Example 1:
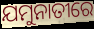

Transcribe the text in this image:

ଯମୁନାତୀରେ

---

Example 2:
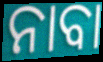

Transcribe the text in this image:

ନାବା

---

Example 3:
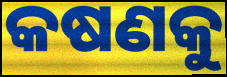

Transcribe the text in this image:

କଷଣକୁ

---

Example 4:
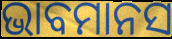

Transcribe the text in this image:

ଭାବମାନସ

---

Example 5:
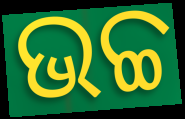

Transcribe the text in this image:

ଭଚ୍ଚ